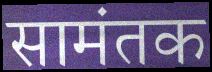
सामंतक